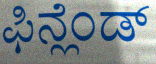
ಫಿನ್ಲೆಂಡ್